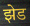
झेड